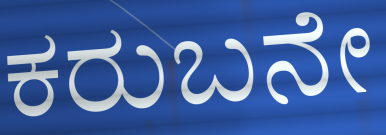
ಕರುಬನೇ